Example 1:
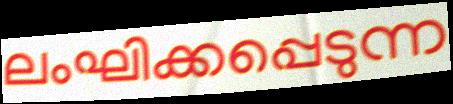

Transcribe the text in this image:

ലംഘിക്കപ്പെടുന്ന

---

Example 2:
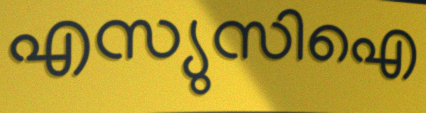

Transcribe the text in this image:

എസ്യുസിഐ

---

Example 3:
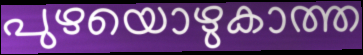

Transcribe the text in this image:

പുഴയൊഴുകാത്ത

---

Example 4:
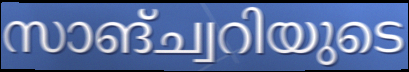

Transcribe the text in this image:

സാങ്ച്വറിയുടെ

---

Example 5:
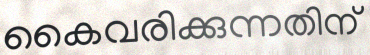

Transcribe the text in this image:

കൈവരിക്കുന്നതിന്